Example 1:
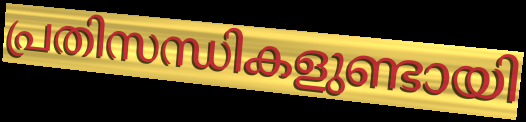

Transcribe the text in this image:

പ്രതിസന്ധികളുണ്ടായി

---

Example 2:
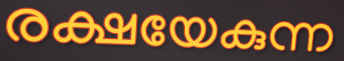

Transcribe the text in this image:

രക്ഷയേകുന്ന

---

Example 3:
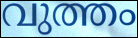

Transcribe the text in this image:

വുത്തം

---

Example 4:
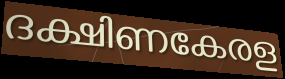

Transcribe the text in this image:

ദക്ഷിണകേരള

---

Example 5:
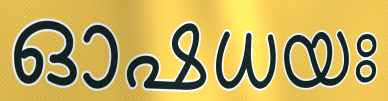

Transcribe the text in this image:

ഓഷധയഃ